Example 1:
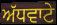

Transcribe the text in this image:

ਅੱਧਵਾਟੇ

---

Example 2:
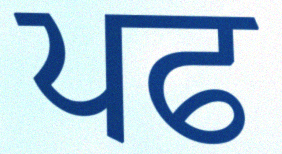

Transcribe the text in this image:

ਪਫ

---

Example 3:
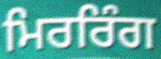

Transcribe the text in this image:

ਮਿਰਰਿੰਗ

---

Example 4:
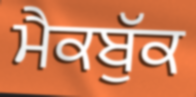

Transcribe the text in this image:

ਮੈਕਬੁੱਕ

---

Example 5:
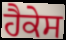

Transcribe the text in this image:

ਹੈਕੇਸ